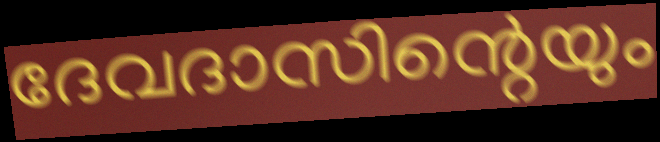
ദേവദാസിന്റെയും